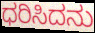
ಧರಿಸಿದನು